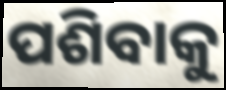
ପଶିବାକୁ